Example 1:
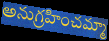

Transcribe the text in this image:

అనుగ్రహించమ్మా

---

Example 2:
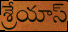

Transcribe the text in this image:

శ్రేయాస్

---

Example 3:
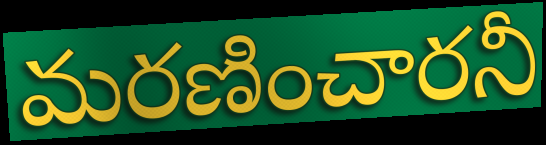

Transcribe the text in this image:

మరణించారనీ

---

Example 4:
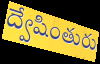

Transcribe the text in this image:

ద్వేషింతురు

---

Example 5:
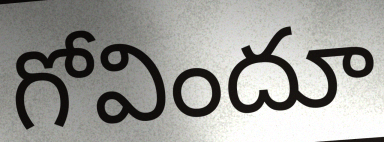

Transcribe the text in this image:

గోవిందూ